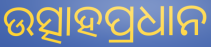
ଉତ୍ସାହପ୍ରଧାନ